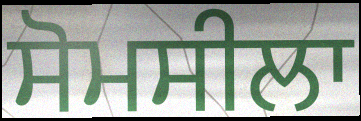
ਸੋਮਸੀਲਾ